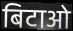
बिटाओ